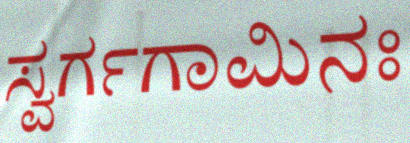
ಸ್ವರ್ಗಗಾಮಿನಃ